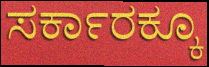
ಸರ್ಕಾರಕ್ಕೂ